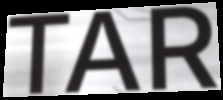
TAR